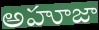
అహూజా